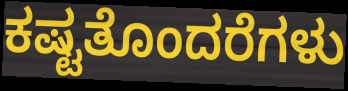
ಕಷ್ಟತೊಂದರೆಗಳು